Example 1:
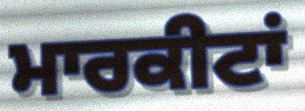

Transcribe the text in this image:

ਮਾਰਕੀਟਾਂ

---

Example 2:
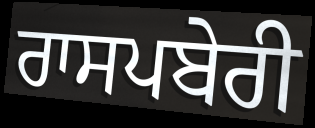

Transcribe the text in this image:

ਰਾਸਪਬੇਰੀ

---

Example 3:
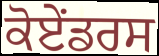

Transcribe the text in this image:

ਕੋਏਂਡਰਸ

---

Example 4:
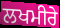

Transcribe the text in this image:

ਲਖਮੀਰੇ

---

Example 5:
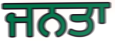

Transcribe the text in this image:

ਜਨਤਾ